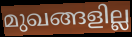
മുഖങ്ങളില്ല